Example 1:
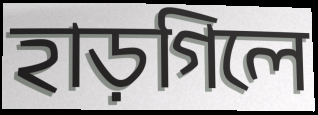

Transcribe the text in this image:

হাড়গিলে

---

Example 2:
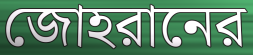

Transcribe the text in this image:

জোহরানের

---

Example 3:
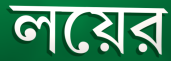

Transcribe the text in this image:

লয়ের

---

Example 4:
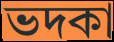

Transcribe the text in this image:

ভদকা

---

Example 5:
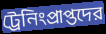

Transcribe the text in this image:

ট্রেনিংপ্রাপ্তদের